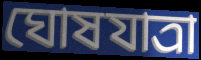
ঘোষযাত্রা